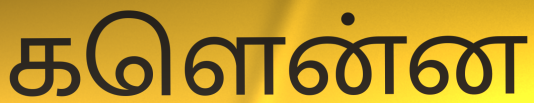
களென்ன